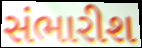
સંભારીશ